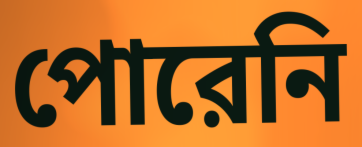
পোরেনি